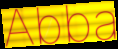
Abba